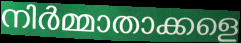
നിർമ്മാതാക്കളെ